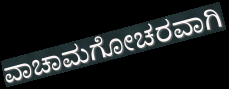
ವಾಚಾಮಗೋಚರವಾಗಿ